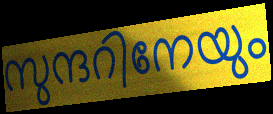
സുന്ദറിനേയും